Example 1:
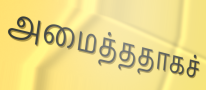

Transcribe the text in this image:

அமைத்ததாகச்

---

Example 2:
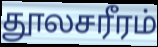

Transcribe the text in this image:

தூலசரீரம்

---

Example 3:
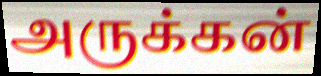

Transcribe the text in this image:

அருக்கன்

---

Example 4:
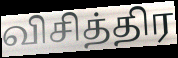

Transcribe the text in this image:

விசித்திர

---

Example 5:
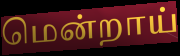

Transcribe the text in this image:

மென்றாய்